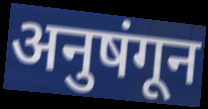
अनुषंगून